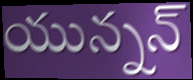
యున్నన్